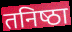
तनिष्‍ठा